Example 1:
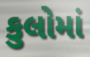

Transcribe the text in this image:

કુલોમાં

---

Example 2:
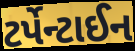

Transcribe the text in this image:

ટર્પેન્ટાઈન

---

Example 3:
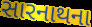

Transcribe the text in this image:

સારનાથના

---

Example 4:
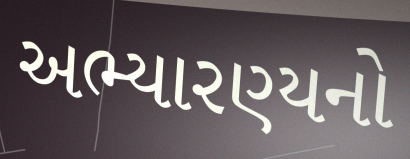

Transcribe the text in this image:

અભ્યારણ્યનો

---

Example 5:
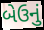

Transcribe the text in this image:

બેઉનું